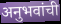
अनुभवांची